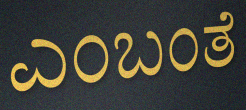
ಎಂಬಂತೆ